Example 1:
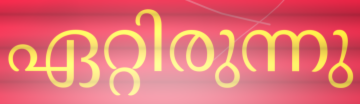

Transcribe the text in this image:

ഏറ്റിരുന്നു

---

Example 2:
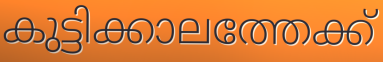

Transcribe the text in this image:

കുട്ടിക്കാലത്തേക്ക്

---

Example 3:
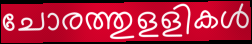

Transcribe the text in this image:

ചോരത്തുളളികൾ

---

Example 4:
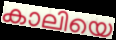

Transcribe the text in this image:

കാലിയെ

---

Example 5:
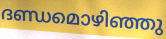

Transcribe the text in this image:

ദണ്ഡമൊഴിഞ്ഞു